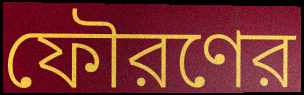
ফৌরণের